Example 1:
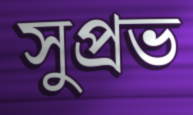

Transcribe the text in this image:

সুপ্রভ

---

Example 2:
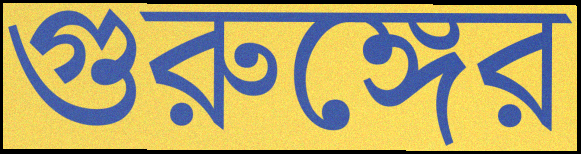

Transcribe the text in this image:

গুরুঙ্গের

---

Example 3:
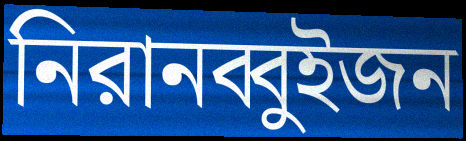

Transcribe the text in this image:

নিরানব্বুইজন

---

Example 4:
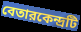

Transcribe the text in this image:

বেতারকেন্দ্রটি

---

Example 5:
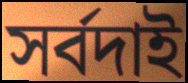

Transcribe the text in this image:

সর্বদাই